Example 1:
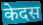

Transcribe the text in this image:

केदस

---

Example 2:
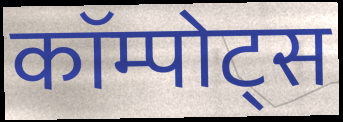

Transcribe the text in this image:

कॉम्पोट्स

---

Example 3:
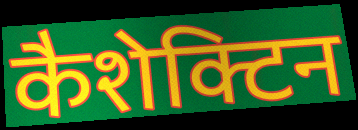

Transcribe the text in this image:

कैशेक्टिन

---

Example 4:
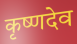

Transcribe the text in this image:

कृष्‍णदेव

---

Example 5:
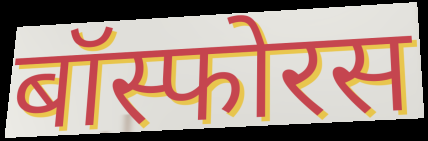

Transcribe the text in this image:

बॉस्फोरस